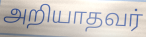
அறியாதவர்